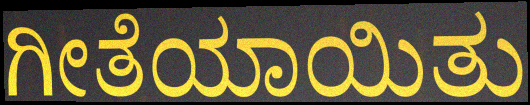
ಗೀತೆಯಾಯಿತು